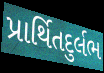
પ્રાર્થિતદુર્લભ